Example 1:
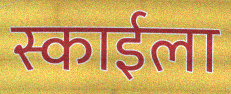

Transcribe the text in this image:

स्काईला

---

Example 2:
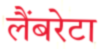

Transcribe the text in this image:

लैंबरेटा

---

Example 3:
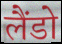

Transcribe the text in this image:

लैंडो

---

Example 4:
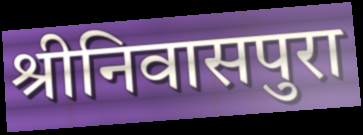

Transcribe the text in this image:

श्रीनिवासपुरा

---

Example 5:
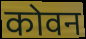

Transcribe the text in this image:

कोवन